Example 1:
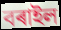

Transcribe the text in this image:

বৰাইল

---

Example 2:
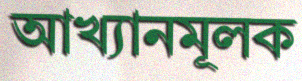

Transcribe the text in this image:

আখ্যানমূলক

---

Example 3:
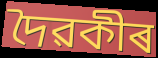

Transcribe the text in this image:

দৈৱকীৰ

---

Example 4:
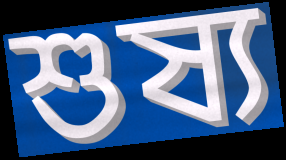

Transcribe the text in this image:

শুষ্য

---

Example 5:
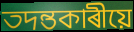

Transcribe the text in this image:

তদন্তকাৰীয়ে